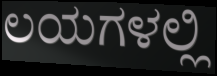
ಲಯಗಳಲ್ಲಿ